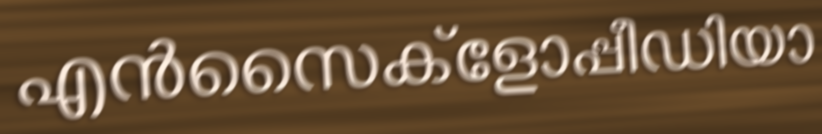
എൻസൈക്ളോപ്പീഡിയാ